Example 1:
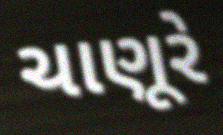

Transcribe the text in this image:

ચાણૂરે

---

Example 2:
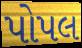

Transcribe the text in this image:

પોપલ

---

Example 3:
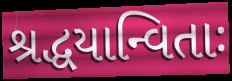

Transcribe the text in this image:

શ્રદ્ધયાન્વિતાઃ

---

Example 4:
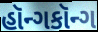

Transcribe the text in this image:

હૉન્ગકૉન્ગ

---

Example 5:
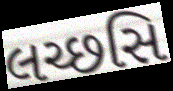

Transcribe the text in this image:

લચ્છસિ